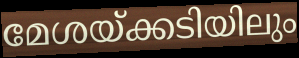
മേശയ്ക്കടിയിലും